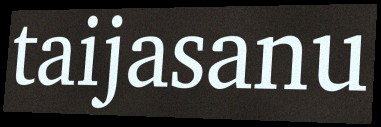
taijasanu